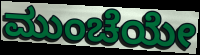
ಮುಂಚೆಯೇ